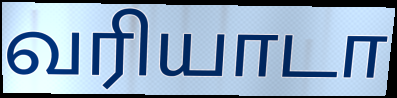
வரியாடா